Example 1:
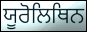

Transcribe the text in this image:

ਯੂਰੋਲਿਥਿਨ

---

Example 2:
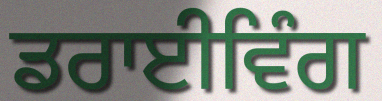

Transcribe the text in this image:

ਡਰਾਈਵਿੰਗ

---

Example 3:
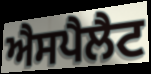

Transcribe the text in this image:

ਐਸਪੈਲੈਟ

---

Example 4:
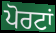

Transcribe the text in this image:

ਪੋਰਟਾਂ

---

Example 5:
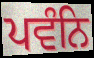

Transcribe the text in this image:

ਪਵੰਨਿ